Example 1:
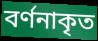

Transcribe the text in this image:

বর্ণনাকৃত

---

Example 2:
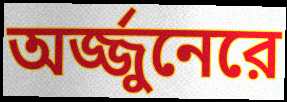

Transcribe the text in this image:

অর্জ্জুনেরে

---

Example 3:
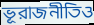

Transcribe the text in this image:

ভূরাজনীতিও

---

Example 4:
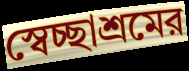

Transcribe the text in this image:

স্বেচ্ছাশ্রমের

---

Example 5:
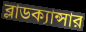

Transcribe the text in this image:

ব্লাডক্যান্সার